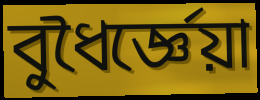
বুধৈর্জ্ঞেয়া